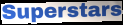
Superstars